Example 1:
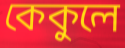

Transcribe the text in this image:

কেকুলে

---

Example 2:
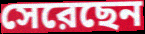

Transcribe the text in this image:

সেরেছেন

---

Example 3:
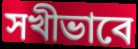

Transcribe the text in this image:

সখীভাবে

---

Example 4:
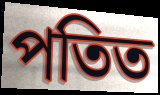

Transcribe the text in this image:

পতিত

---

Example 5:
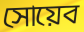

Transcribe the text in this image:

সোয়েব